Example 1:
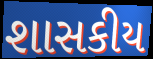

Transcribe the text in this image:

શાસકીય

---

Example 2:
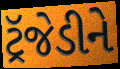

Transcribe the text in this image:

ટ્રૅજેડીને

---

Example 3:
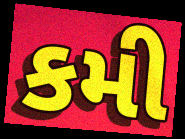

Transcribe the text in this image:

કમી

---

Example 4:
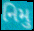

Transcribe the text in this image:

નિમુ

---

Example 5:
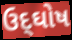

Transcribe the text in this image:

ઉદ્‌ઘોષ